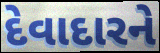
દેવાદારને